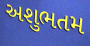
અશુભતમ